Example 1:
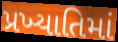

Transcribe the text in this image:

પ્રખ્યાતિમાં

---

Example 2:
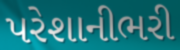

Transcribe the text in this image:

પરેશાનીભરી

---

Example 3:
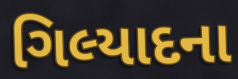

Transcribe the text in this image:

ગિલ્યાદના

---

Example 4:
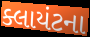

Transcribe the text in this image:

ક્લાયંટના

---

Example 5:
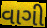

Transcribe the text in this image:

વાગી